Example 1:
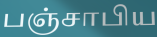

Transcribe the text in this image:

பஞ்சாபிய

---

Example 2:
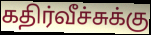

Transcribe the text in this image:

கதிர்வீச்சுக்கு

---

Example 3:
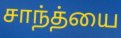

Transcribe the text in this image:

சாந்த்யை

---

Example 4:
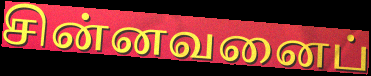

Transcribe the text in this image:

சின்னவனைப்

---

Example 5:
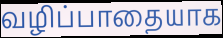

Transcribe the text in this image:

வழிப்பாதையாக